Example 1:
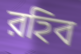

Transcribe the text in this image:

রহিব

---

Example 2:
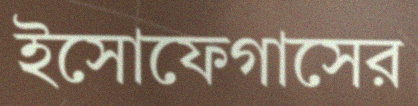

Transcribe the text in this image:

ইসোফেগাসের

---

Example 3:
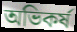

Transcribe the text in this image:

অভিকর্ষ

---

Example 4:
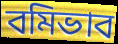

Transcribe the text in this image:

বমিভাব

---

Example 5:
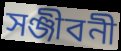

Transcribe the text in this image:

সঞ্জীবনী